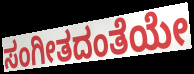
ಸಂಗೀತದಂತೆಯೇ